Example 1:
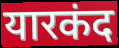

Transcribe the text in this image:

यारकंद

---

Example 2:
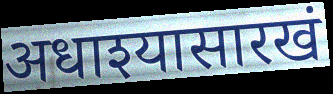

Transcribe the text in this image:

अधाश्यासारखं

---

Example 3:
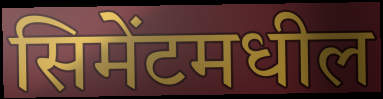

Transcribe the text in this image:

सिमेंटमधील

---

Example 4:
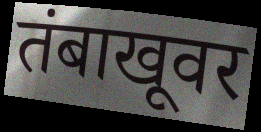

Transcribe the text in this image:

तंबाखूवर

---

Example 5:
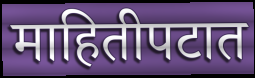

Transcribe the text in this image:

माहितीपटात